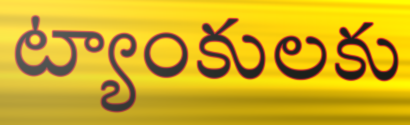
ట్యాంకులకు